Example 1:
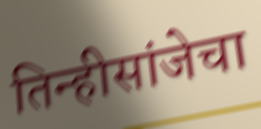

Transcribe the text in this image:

तिन्हीसांजेचा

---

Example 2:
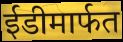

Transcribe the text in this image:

ईडीमार्फत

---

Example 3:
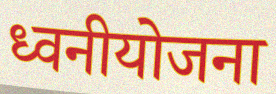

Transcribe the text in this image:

ध्वनीयोजना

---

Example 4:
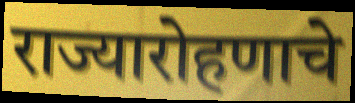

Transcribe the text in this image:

राज्यारोहणाचे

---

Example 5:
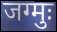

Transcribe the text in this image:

जग्मुः